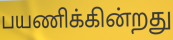
பயணிக்கின்றது